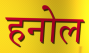
हनोल